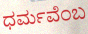
ಧರ್ಮವೆಂಬ